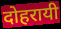
दोहरायी